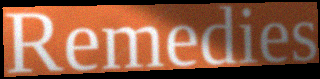
Remedies